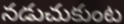
నడుచుకుంట